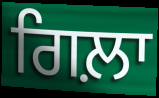
ਗਿਲ਼ਾ